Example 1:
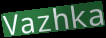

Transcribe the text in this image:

Vazhka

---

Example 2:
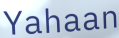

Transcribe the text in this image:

Yahaan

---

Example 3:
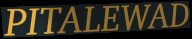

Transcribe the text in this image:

PITALEWAD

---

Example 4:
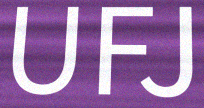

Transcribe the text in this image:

UFJ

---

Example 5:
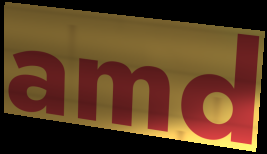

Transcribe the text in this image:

amd